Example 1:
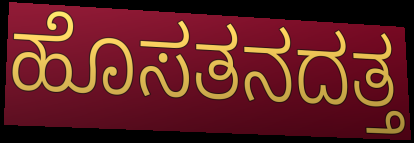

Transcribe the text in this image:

ಹೊಸತನದತ್ತ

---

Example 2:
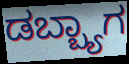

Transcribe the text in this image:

ಡಬ್ಬ್ಯಾಗ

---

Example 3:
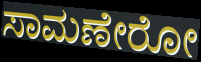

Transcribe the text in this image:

ಸಾಮಣೇರೋ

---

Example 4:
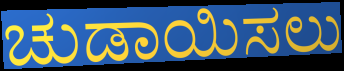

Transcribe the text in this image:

ಚುಡಾಯಿಸಲು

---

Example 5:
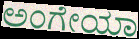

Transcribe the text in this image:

ಅಂಗೇಯಾ